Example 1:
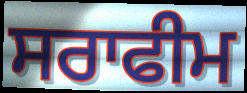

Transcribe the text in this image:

ਸਰਾਫੀਮ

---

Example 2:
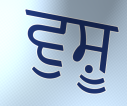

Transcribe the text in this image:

ਵੁਸ਼ੂ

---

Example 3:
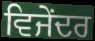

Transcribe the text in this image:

ਵਿਜੇਂਦਰ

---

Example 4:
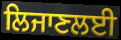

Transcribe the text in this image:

ਲਿਜਾਣਲਈ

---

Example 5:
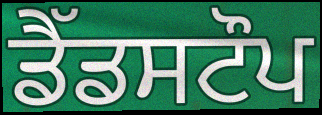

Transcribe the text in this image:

ਡੈੱਡਸਟੌਪ